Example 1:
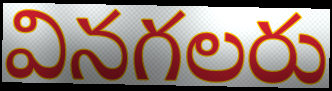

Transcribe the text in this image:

వినగలరు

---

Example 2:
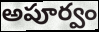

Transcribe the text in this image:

అపూర్వం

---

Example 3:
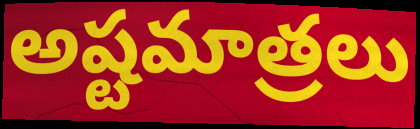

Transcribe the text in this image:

అష్టమాత్రలు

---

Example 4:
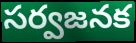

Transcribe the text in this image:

సర్వజనక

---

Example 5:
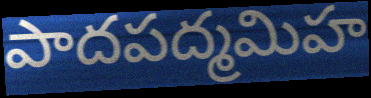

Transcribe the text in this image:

పాదపద్మమిహ